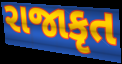
રાજાકૃત